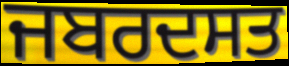
ਜਬਰਦਸਤ